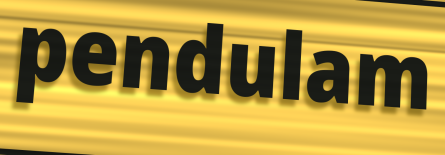
pendulam